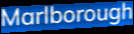
Marlborough